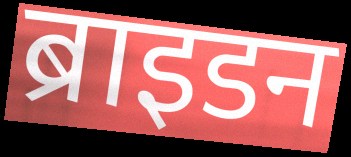
ब्राइडन